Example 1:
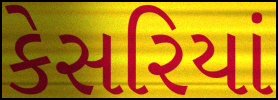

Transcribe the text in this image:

કેસરિયાં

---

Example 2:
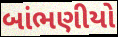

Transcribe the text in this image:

બાંભણીયો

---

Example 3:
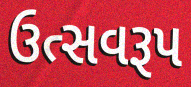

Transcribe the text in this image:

ઉત્સવરૂપ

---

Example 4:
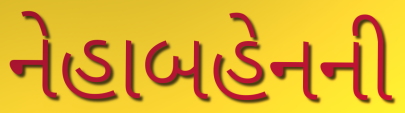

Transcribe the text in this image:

નેહાબહેનની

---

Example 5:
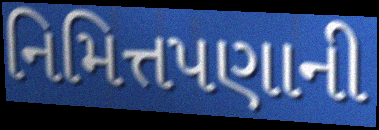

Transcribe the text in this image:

નિમિત્તપણાની